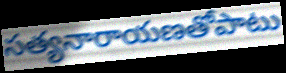
సత్యనారాయణతోపాటు